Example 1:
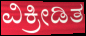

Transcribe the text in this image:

ವಿಕ್ರೀಡಿತ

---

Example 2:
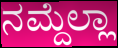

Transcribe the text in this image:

ನಮ್ದೆಲ್ಲಾ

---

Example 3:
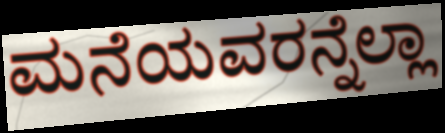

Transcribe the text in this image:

ಮನೆಯವರನ್ನೆಲ್ಲಾ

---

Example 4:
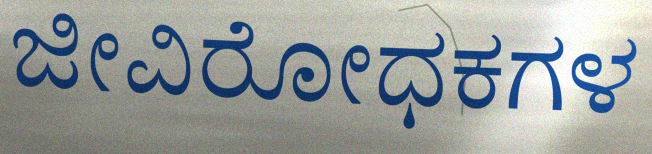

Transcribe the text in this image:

ಜೀವಿರೋಧಕಗಳ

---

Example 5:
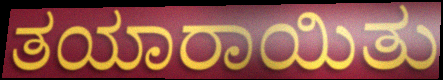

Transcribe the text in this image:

ತಯಾರಾಯಿತು